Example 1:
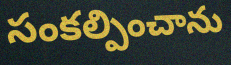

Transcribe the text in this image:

సంకల్పించాను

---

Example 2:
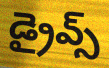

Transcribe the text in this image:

డ్రైవ్స్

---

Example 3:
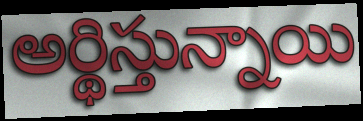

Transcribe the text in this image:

అర్థిస్తున్నాయి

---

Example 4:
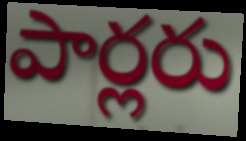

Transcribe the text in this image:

పార్లరు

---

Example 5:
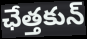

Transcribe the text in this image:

ఛేత్తకున్